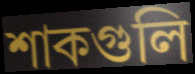
শাকগুলি